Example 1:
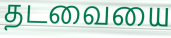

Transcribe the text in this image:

தடவையை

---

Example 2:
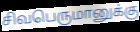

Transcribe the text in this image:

சிவபெருமானுக்கு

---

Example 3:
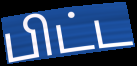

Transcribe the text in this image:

பிட்ட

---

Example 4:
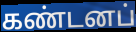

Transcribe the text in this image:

கண்டனப்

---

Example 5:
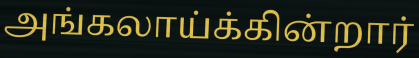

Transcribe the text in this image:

அங்கலாய்க்கின்றார்